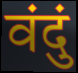
वंदुं